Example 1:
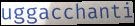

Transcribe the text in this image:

uggacchanti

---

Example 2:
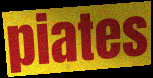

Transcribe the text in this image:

piates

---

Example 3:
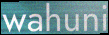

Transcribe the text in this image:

wahuni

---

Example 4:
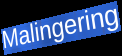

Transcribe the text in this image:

Malingering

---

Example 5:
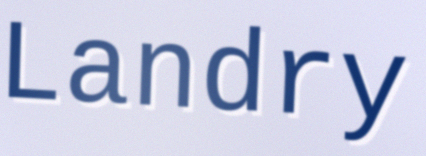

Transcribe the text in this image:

Landry